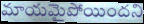
మాయమైపోయిందని